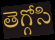
తెగ్గోసి